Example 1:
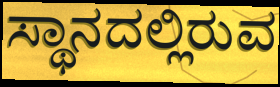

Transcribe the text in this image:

ಸ್ಥಾನದಲ್ಲಿರುವ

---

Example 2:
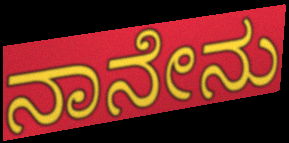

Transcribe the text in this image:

ನಾನೇನು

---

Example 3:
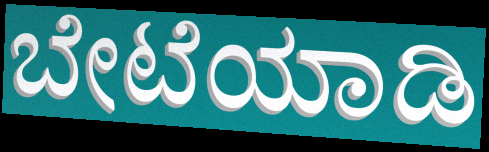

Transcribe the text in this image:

ಬೇಟೆಯಾಡಿ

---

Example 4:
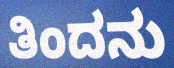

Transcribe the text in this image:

ತಿಂದನು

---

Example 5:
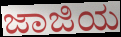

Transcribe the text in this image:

ಜಾಜಿಯ